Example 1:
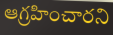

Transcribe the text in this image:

ఆగ్రహించారని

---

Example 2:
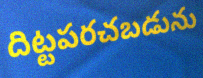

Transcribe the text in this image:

దిట్టపరచబడును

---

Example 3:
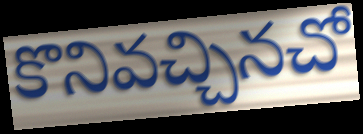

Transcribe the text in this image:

కొనివచ్చినచో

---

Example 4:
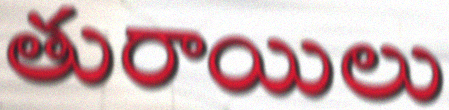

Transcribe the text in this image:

తురాయిలు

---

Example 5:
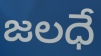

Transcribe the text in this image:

జలధే